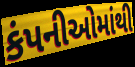
કંપનીઓમાંથી